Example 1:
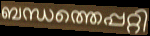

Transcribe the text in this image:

ബന്ധത്തെപ്പറ്റി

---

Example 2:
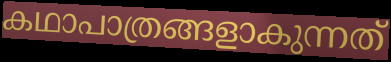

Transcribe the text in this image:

കഥാപാത്രങ്ങളാകുന്നത്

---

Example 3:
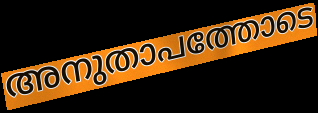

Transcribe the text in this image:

അനുതാപത്തോടെ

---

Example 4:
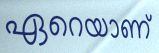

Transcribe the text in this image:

ഏറെയാണ്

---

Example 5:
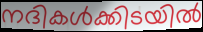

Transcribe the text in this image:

നദികൾക്കിടയിൽ